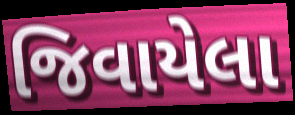
જિવાયેલા